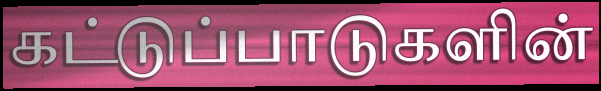
கட்டுப்பாடுகளின்